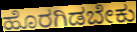
ಹೊರಗಿಡಬೇಕು